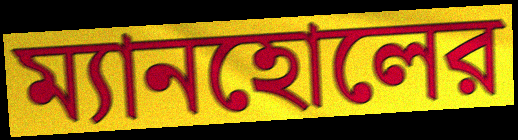
ম্যানহোলের